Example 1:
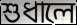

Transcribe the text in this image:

শুধালে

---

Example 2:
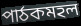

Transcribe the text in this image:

পাঠকমহল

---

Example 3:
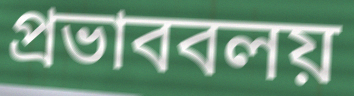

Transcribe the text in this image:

প্রভাববলয়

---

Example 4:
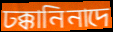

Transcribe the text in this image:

ঢক্কানিনাদে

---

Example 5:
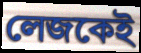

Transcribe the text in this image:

লেজকেই